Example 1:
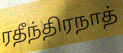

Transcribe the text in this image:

ரதீந்திரநாத்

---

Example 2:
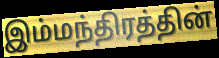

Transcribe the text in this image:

இம்மந்திரத்தின்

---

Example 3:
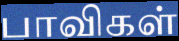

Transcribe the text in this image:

பாவிகள்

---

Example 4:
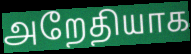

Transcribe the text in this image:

அறேதியாக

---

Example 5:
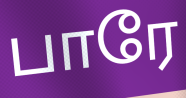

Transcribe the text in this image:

பாரே